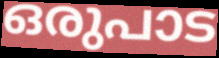
ഒരുപാട